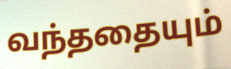
வந்ததையும்